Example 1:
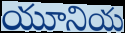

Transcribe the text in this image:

యూనియ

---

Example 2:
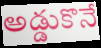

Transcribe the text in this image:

అడ్డుకొనే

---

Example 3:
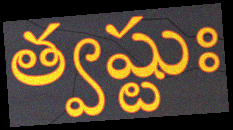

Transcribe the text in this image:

త్వష్టుః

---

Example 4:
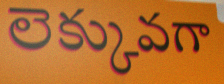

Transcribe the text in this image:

లెక్కువగా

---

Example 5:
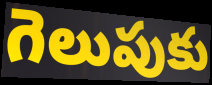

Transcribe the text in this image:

గెలుపుకు